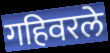
गहिवरले